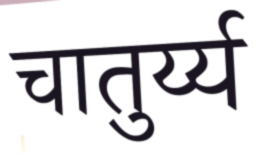
चातुर्य्य